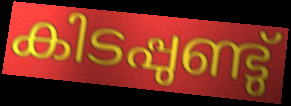
കിടപ്പുണ്ടു്